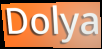
Dolya